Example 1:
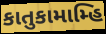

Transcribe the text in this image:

કાતુકામામ્હિ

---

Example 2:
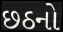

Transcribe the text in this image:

છઠનો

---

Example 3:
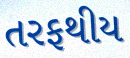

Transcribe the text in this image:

તરફથીય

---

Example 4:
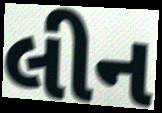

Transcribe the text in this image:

લીન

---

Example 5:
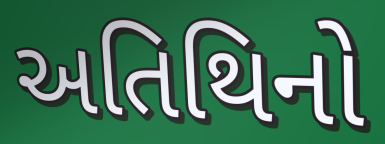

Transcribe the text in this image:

અતિથિનો